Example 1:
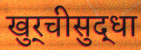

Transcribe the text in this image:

खुर्चीसुद्धा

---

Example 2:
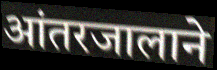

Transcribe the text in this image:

आंतरजालाने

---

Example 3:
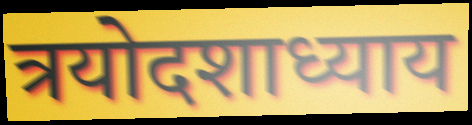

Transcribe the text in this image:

त्रयोदशाध्याय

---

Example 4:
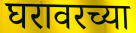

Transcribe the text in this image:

घरावरच्या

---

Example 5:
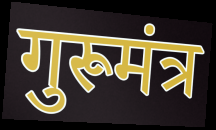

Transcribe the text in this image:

गुरूमंत्र